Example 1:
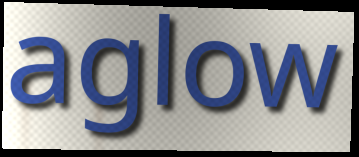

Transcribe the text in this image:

aglow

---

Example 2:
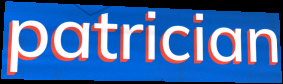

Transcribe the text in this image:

patrician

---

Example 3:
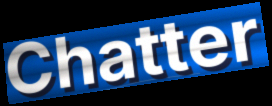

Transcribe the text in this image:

Chatter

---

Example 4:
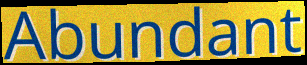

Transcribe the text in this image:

Abundant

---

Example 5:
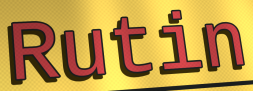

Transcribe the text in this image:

Rutin